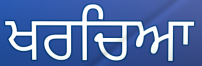
ਖਰਚਿਆ